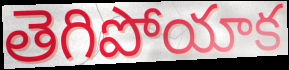
తెగిపోయాక